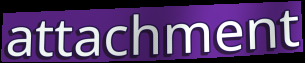
attachment